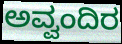
ಅವ್ವಂದಿರ